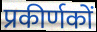
प्रकीर्णकों